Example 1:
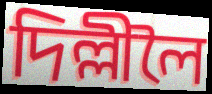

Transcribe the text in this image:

দিল্লীলৈ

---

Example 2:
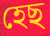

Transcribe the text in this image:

হেছ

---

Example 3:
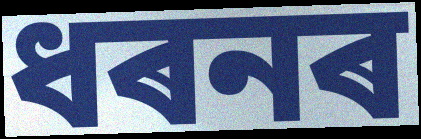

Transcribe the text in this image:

ধৰনৰ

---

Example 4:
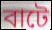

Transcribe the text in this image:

বাটে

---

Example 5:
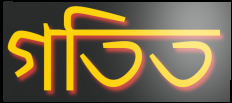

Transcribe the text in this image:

গতিত